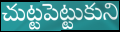
చుట్టపెట్టుకుని